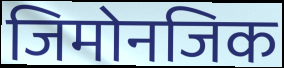
जिमोनजिक